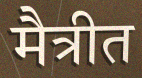
मैत्रीत